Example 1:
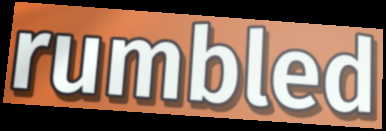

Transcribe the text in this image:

rumbled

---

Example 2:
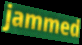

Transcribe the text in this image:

jammed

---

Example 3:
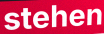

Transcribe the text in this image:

stehen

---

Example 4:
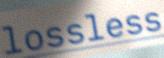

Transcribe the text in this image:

lossless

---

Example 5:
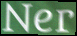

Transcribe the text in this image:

Ner